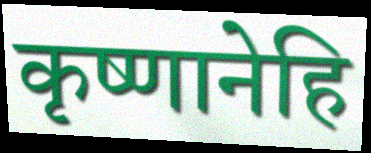
कृष्णानेहि